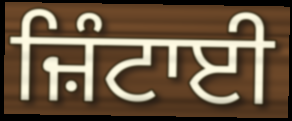
ਜ਼ਿੰਟਾਈ